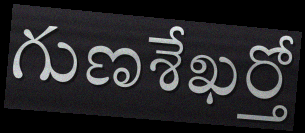
గుణశేఖర్తో